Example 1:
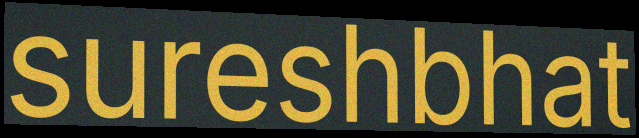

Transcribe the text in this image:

sureshbhat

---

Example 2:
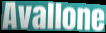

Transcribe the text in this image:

Avallone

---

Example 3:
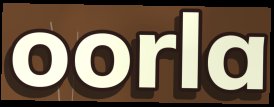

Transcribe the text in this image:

oorla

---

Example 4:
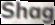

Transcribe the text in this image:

Shag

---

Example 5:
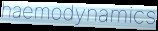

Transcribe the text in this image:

haemodynamics